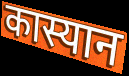
कास्यान